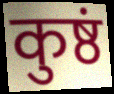
कुष्ठं